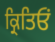
ਕ੍ਰਿਤਿਓਂ